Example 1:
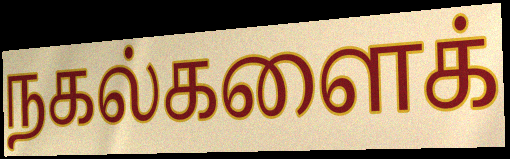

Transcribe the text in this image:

நகல்களைக்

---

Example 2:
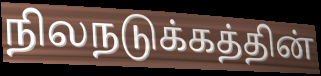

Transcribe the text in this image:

நிலநடுக்கத்தின்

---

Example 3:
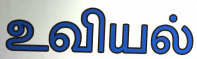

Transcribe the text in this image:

உவியல்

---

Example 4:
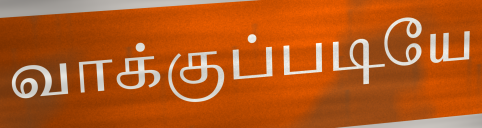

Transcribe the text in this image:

வாக்குப்படியே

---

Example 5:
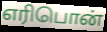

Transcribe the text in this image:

எரிபொன்